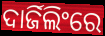
ଦାର୍ଜିଲିଂରେ